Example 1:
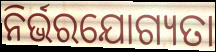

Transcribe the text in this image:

ନିର୍ଭରଯୋଗ୍ୟତା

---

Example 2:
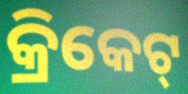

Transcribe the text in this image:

କ୍ରିକେଟ୍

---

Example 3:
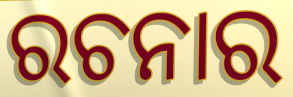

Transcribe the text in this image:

ରଚନାର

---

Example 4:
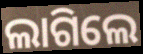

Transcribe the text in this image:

ଲାଗିଲେ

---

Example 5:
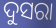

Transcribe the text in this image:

ଦୁସରା